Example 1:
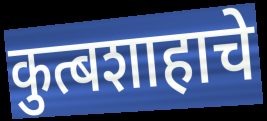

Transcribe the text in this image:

कुत्बशाहाचे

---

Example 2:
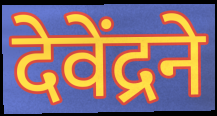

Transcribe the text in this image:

देवेंद्रने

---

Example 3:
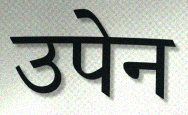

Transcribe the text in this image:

उपेन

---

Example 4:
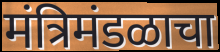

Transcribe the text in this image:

मंत्रिमंडळाचा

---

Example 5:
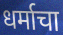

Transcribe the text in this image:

धर्माचा